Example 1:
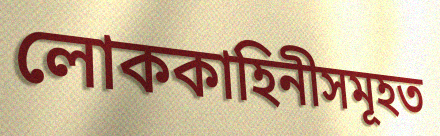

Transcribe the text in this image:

লোককাহিনীসমূহত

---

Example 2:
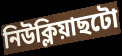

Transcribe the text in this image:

নিউক্লিয়াছটো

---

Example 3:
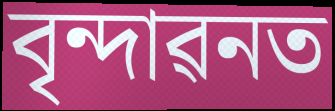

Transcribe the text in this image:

বৃন্দাৱনত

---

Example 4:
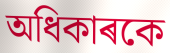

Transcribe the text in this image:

অধিকাৰকে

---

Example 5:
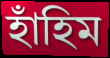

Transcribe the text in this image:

হাঁহিম